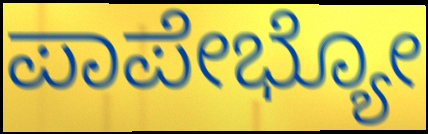
ಪಾಪೇಭ್ಯೋ